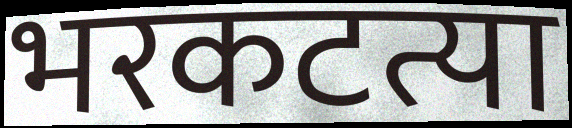
भरकटत्या